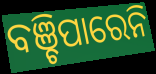
ବଞ୍ଚିପାରେନି